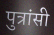
पुत्रांसी